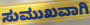
ಸುಮುಖವಾಗಿ